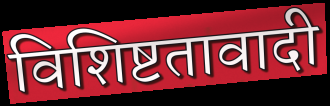
विशिष्टतावादी